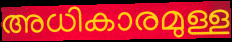
അധികാരമുള്ള